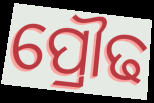
ପ୍ରୌଢ